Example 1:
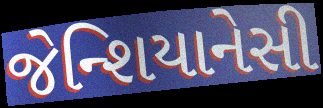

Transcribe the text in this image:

જેન્શિયાનેસી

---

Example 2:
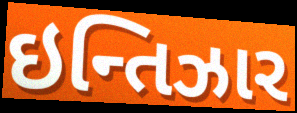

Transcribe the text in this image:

ઇન્તિઝાર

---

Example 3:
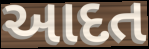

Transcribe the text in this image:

આદત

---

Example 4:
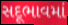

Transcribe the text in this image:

સદૂભાવમાં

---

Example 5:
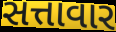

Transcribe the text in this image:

સત્તાવાર